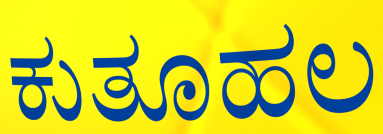
ಕುತೂಹಲ